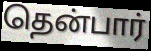
தென்பார்